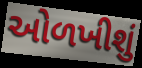
ઓળખીશું